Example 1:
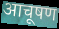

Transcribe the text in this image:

आचूषण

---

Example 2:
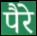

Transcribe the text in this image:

पैरे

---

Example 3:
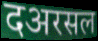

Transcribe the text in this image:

दअरसल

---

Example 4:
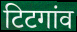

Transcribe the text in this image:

टिटगांव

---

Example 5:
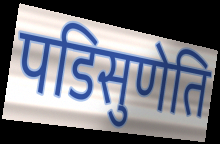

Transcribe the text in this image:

पडिसुणेति